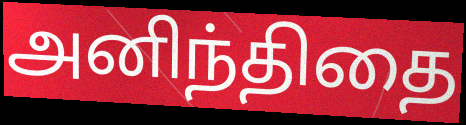
அனிந்திதை